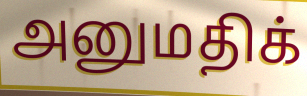
அனுமதிக்